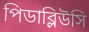
পিডাব্লিউসি